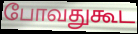
போவதுகூட